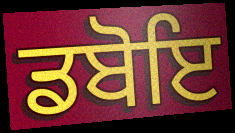
ਡਬੋਇ